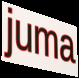
juma